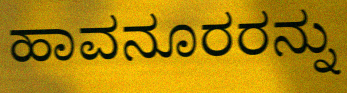
ಹಾವನೂರರನ್ನು